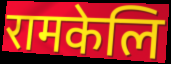
रामकेलि